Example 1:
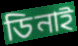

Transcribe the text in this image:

ডিনাই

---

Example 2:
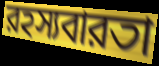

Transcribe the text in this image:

রহস্যবারতা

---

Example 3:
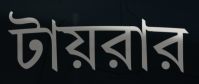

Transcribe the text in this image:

টায়রার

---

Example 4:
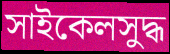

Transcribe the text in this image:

সাইকেলসুদ্ধ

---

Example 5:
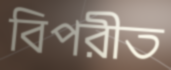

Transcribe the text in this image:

বিপরীত